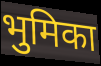
भुमिका